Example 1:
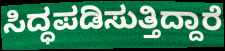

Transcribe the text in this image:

ಸಿದ್ಧಪಡಿಸುತ್ತಿದ್ದಾರೆ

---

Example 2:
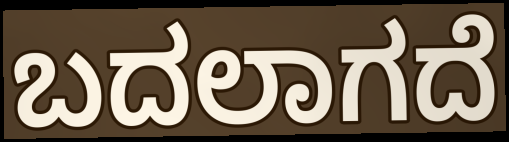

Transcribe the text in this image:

ಬದಲಾಗದೆ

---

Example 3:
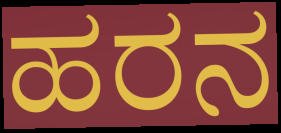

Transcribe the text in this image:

ಹರನ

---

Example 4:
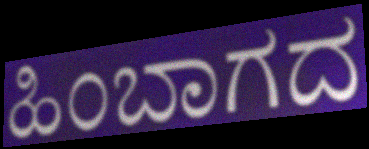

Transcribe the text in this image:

ಹಿಂಬಾಗದ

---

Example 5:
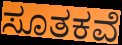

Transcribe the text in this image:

ಸೂತಕವೆ